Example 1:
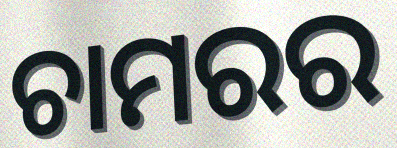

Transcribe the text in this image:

ଚାମରର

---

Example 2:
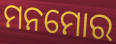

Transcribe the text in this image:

ମନମୋର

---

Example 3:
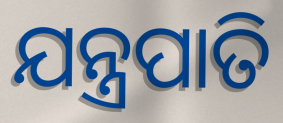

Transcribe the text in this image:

ଯନ୍ତ୍ରପାତି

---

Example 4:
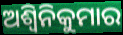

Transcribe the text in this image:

ଅଶ୍ୱିନିକୁମାର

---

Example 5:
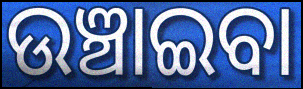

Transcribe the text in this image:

ଉଞ୍ଚାଇବା